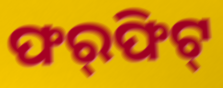
ଫର୍‍ଫିଟ୍